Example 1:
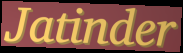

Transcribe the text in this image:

Jatinder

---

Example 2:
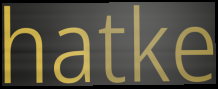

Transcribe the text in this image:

hatke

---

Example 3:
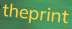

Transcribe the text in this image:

theprint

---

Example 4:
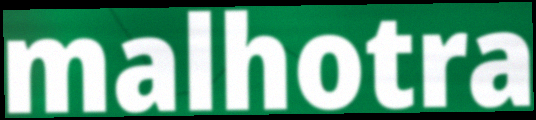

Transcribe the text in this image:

malhotra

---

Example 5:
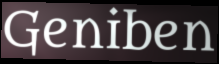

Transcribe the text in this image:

Geniben